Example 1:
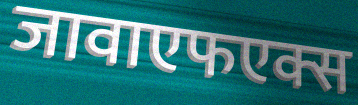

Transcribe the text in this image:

जावाएफएक्स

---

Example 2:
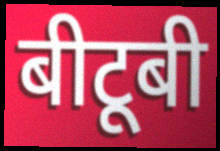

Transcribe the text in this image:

बीटूबी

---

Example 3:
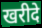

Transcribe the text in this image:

खरीदे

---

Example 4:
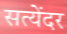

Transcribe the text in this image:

सत्येंदर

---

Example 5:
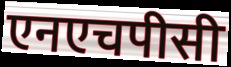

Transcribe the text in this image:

एनएचपीसी